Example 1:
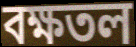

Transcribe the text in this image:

বক্ষতল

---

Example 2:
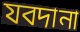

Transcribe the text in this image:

যবদানা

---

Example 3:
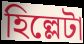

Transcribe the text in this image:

হিল্লেটা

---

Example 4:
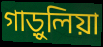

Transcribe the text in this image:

গাড়ুলিয়া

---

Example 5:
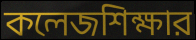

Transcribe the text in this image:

কলেজশিক্ষার